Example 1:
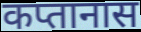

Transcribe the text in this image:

कप्तानास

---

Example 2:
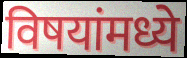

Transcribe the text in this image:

विषयांमध्ये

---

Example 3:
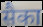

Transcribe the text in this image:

सैका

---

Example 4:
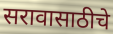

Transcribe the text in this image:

सरावासाठीचे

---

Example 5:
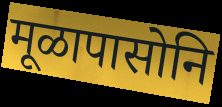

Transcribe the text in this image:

मूळापासोनि